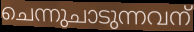
ചെന്നുചാടുന്നവന്